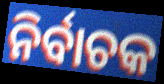
ନିର୍ବାଚକ